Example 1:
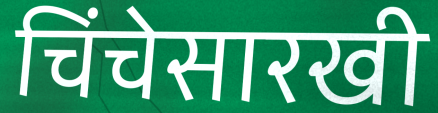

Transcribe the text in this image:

चिंचेसारखी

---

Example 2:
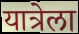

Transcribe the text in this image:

यात्रेला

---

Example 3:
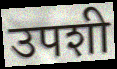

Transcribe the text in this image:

उपशी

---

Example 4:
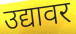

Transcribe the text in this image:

उद्यावर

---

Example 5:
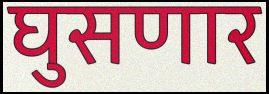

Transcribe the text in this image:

घुसणार